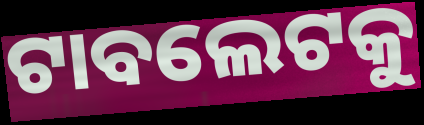
ଟାବଲେଟକୁ